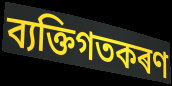
ব্যক্তিগতকৰণ